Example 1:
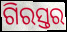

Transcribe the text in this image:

ଗିରସ୍ତର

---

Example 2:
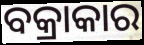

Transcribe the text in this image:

ବକ୍ରାକାର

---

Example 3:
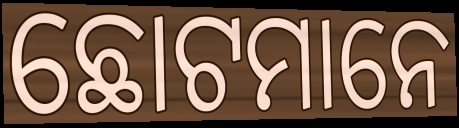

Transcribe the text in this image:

ଛୋଟମାନେ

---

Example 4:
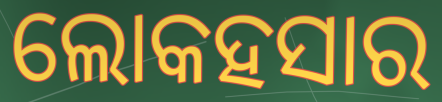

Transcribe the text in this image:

ଲୋକହସାର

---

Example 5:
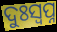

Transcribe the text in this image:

ଦୁଃସ୍ଵପ୍ନ